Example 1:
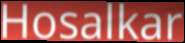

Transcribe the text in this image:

Hosalkar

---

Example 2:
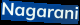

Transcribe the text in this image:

Nagarani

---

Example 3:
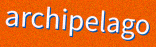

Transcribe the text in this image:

archipelago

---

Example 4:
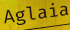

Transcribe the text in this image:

Aglaia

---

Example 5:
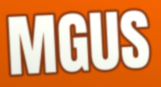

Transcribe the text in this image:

MGUS